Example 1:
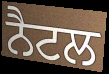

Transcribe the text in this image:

ਨੈਟਲ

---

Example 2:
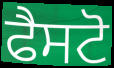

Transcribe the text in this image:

ਫੈਸਟੋ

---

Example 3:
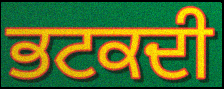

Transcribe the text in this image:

ਭਟਕਦੀ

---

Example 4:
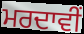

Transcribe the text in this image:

ਮਰਦਾਵੀਂ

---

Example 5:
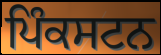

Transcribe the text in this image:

ਪਿੰਕਸਟਨ